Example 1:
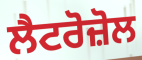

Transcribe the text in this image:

ਲੈਟਰੋਜ਼ੋਲ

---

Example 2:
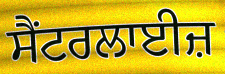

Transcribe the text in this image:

ਸੈਂਟਰਲਾਈਜ਼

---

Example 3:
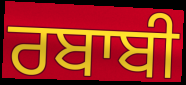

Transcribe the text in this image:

ਰਬਾਬੀ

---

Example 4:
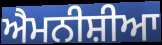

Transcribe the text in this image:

ਐਮਨੀਸ਼ੀਆ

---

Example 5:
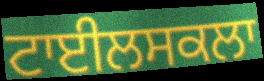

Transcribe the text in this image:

ਟਾਈਲਸਕਲਾ